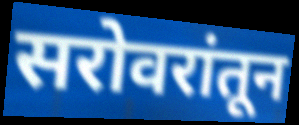
सरोवरांतून